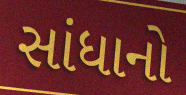
સાંધાનો